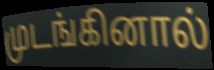
முடங்கினால்